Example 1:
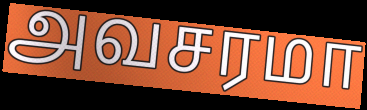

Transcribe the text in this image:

அவசரமா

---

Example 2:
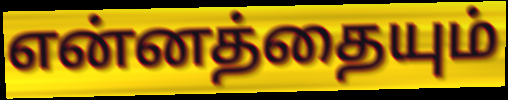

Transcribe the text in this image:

என்னத்தையும்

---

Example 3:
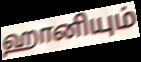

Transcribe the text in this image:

ஹானியும்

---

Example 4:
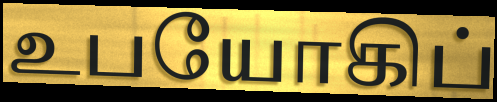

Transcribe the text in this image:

உபயோகிப்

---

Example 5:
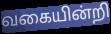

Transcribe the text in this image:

வகையின்றி